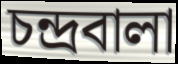
চন্দ্রবালা